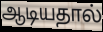
ஆடியதால்